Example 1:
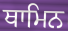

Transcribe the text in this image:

ਥਾਮਿਨ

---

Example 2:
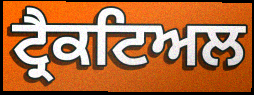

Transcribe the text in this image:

ਟ੍ਰੈਕਟਿਅਲ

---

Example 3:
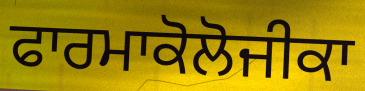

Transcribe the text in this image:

ਫਾਰਮਾਕੋਲੋਜੀਕਾ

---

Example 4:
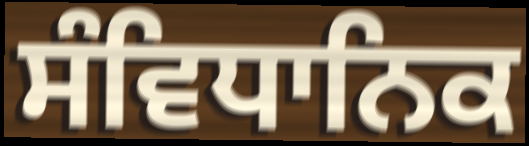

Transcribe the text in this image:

ਸੰਵਿਧਾਨਿਕ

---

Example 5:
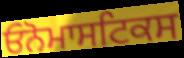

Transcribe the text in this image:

ਓਨੋਮਾਸਟਿਕਸ